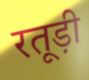
रतूड़ी